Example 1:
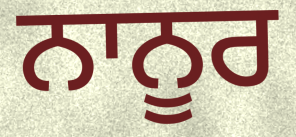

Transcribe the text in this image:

ਨਾਨੂਰ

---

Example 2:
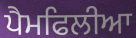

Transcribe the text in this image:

ਪੈਮਫਿਲੀਆ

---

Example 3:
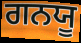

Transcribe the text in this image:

ਗਨਯੂ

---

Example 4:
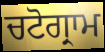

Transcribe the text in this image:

ਚਟੋਗ੍ਰਾਮ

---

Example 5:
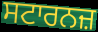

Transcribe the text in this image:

ਸਟਾਰਨਜ਼